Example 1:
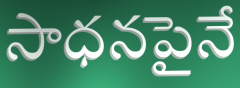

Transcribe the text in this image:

సాధనపైనే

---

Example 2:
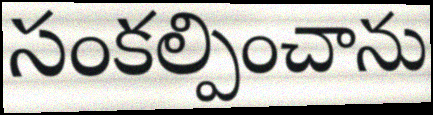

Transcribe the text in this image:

సంకల్పించాను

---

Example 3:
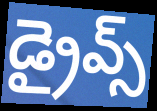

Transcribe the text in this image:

డ్రైవ్స్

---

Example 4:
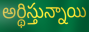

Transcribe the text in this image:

అర్థిస్తున్నాయి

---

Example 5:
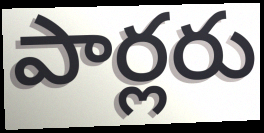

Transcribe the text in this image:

పార్లరు